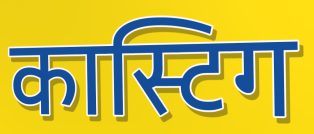
कास्टिग